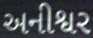
અનીશ્વર